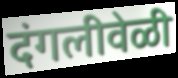
दंगलीवेळी